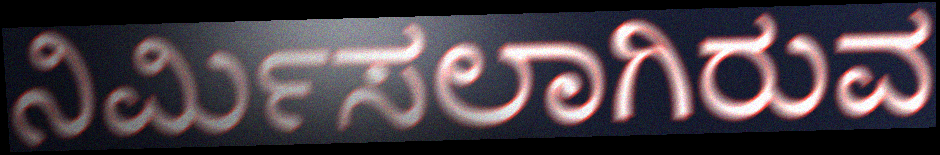
ನಿರ್ಮಿಸಲಾಗಿರುವ